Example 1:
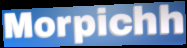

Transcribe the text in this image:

Morpichh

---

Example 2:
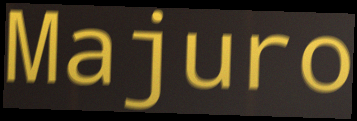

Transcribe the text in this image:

Majuro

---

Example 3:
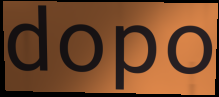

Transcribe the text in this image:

dopo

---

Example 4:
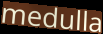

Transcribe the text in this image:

medulla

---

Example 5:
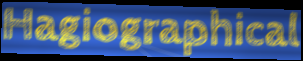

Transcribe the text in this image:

Hagiographical